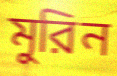
মুরিন